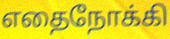
எதைநோக்கி